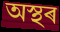
অস্থৰ